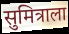
सुमित्राला